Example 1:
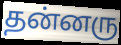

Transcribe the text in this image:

தன்னரு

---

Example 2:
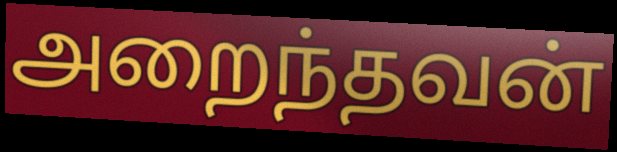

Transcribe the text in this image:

அறைந்தவன்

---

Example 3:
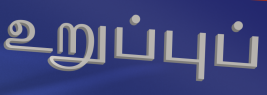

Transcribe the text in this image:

உறுப்புப்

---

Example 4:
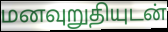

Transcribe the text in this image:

மனவுறுதியுடன்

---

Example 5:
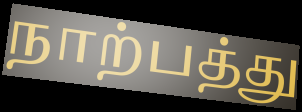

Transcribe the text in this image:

நாற்பத்து